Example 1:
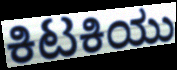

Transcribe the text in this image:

ಕಿಟಕಿಯು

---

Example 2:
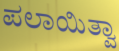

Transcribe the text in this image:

ಪಲಾಯಿತ್ವಾ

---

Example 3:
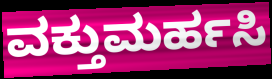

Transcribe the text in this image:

ವಕ್ತುಮರ್ಹಸಿ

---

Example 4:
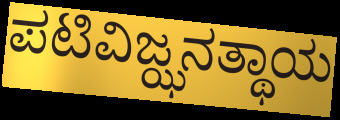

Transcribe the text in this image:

ಪಟಿವಿಜ್ಝನತ್ಥಾಯ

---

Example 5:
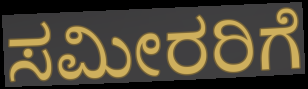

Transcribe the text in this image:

ಸಮೀರರಿಗೆ